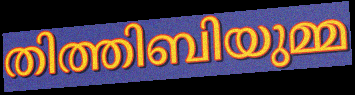
തിത്തിബിയുമ്മ